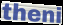
theni